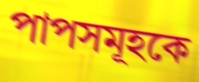
পাপসমূহকে